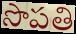
సొపతి